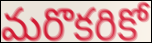
మరొకరికో